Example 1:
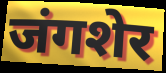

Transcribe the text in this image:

जंगशेर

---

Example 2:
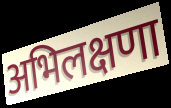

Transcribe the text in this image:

अभिलक्षणा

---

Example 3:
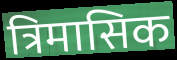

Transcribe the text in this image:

त्रिमासिक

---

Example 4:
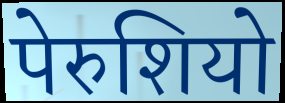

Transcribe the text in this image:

पेरुशियो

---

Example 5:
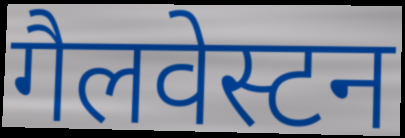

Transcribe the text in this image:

गैलवेस्टन